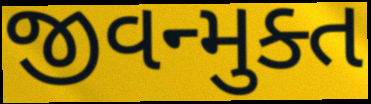
જીવન્મુક્ત